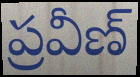
ప్రవీణ్